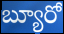
బ్యూరో